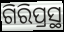
ଗିରିପ୍ରସ୍ଥ